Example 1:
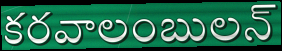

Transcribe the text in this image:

కరవాలంబులన్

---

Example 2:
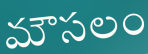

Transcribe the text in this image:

మౌసలం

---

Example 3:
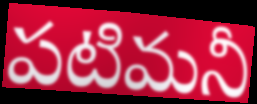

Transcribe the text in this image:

పటిమనీ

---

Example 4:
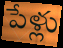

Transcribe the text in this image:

పేళ్లు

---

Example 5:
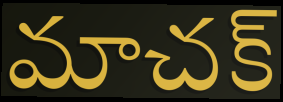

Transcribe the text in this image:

మాచక్